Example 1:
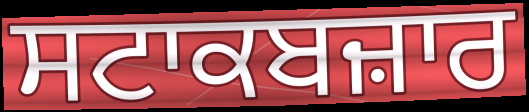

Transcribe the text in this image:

ਸਟਾਕਬਜ਼ਾਰ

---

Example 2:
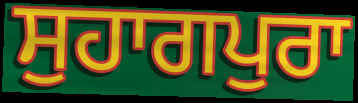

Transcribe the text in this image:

ਸੁਹਾਗਪੁਰਾ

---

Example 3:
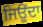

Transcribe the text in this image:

ਜਿਊਂਦਾ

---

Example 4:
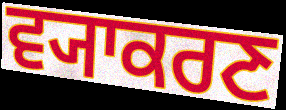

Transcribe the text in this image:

ਵ੍ਯਾਕਰਣ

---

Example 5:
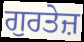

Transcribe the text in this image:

ਗੁਰਤੇਜ਼